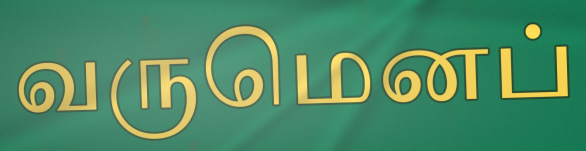
வருமெனப்